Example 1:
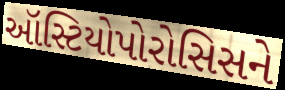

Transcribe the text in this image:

ઑસ્ટિયોપોરોસિસને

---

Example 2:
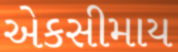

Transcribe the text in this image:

એકસીમાય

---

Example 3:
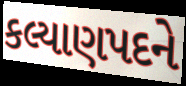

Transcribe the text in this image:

કલ્યાણપદને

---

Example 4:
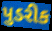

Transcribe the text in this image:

પુડરીક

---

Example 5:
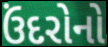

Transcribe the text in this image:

ઉંદરોનો